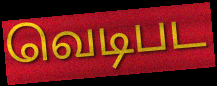
வெடிபட